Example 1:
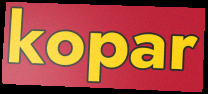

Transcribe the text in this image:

kopar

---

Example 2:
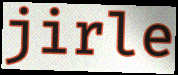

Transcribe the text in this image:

jirle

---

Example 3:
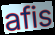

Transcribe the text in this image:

afis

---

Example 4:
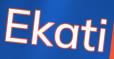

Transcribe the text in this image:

Ekati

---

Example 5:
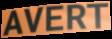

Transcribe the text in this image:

AVERT